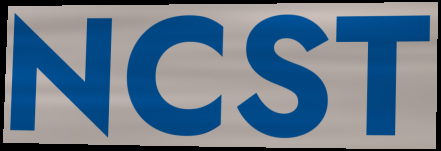
NCST